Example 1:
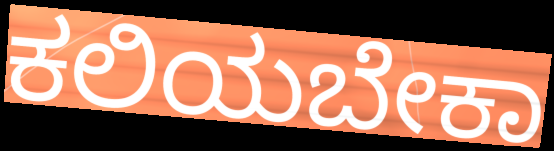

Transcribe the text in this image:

ಕಲಿಯಬೇಕಾ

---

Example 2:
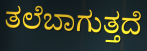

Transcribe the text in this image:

ತಲೆಬಾಗುತ್ತದೆ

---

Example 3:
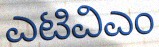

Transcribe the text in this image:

ಎಟಿವಿಎಂ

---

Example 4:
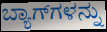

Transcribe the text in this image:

ಬ್ಯಾಗ್‌ಗಳನ್ನು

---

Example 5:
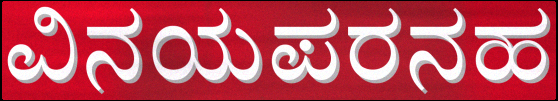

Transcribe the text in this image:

ವಿನಯಪರನಹ